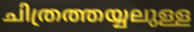
ചിത്രത്തയ്യലുള്ള